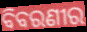
ବିବରଣୀର